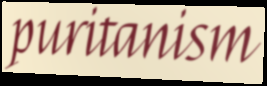
puritanism